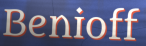
Benioff